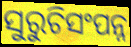
ସୁରୁଚିସଂପନ୍ନ